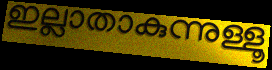
ഇല്ലാതാകുന്നുള്ളൂ